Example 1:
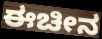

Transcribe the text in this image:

ಈಚೀನ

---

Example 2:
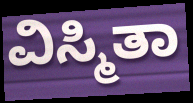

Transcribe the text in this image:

ವಿಸ್ಮಿತಾ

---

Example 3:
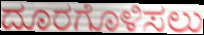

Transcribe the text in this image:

ದೂರಗೊಳಿಸಲು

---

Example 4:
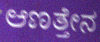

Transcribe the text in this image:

ಆಣತ್ತೇನ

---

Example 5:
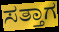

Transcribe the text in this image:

ಸತ್ತಾಗ